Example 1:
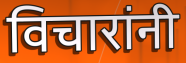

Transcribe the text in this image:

विचारांनी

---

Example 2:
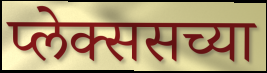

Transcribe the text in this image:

प्लेक्ससच्या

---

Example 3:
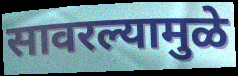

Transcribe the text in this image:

सावरल्यामुळे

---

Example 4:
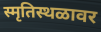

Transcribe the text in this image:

स्मृतिस्थळावर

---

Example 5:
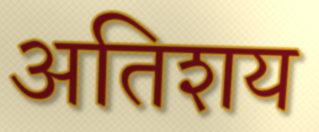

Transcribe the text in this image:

अतिशय